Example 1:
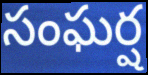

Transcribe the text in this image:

సంఘర్ష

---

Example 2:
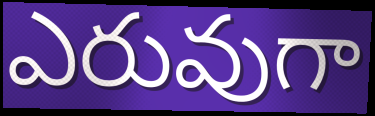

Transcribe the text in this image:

ఎరువుగా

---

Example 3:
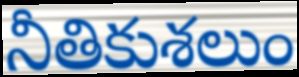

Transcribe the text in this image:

నీతికుశలుం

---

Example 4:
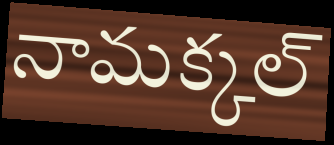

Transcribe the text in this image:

నామక్కల్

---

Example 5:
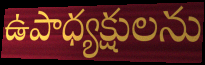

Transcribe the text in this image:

ఉపాధ్యక్షులను